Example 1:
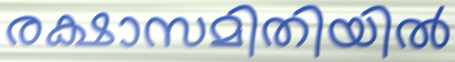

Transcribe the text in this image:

രക്ഷാസമിതിയിൽ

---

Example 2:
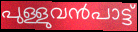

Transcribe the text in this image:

പുള്ളുവൻപാട്ട്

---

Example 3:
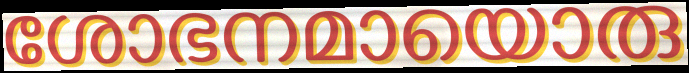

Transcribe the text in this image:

ശോഭനമായൊരു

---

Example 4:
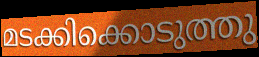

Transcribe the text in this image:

മടക്കിക്കൊടുത്തു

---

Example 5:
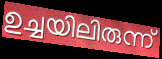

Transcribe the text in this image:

ഉച്ചയിലിരുന്ന്